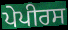
ਪੇਪੀਰਸ